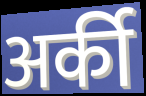
अर्की